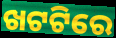
ଖଟଟିରେ